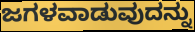
ಜಗಳವಾಡುವುದನ್ನು